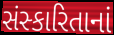
સંસ્કારિતાનાં